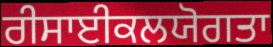
ਰੀਸਾਈਕਲਯੋਗਤਾ